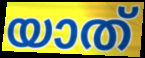
യാത്